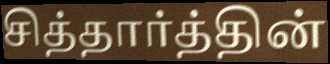
சித்தார்த்தின்